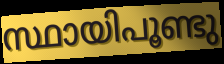
സ്ഥായിപൂണ്ടു